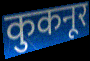
कुकनूर